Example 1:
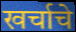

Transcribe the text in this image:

खर्चाचे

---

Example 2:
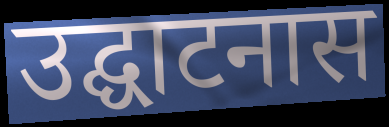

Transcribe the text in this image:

उद्घाटनास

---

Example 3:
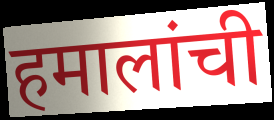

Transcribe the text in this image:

हमालांची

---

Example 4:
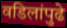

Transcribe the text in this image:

वडिलांपुढे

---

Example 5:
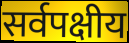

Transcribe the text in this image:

सर्वपक्षीय